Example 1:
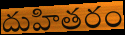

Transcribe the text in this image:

దుహితరం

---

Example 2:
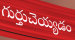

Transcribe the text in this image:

గుర్తుచెయ్యడం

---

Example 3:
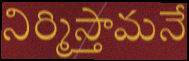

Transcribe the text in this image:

నిర్మిస్తామనే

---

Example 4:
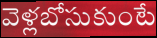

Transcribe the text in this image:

వెళ్లబోసుకుంటే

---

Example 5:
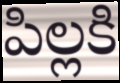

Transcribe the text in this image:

పిల్లకి